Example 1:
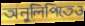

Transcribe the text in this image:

অনুলিপিতেও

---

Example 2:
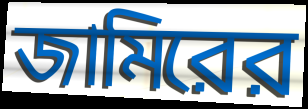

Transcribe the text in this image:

জামিরের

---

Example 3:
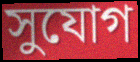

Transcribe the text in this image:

সুযোগ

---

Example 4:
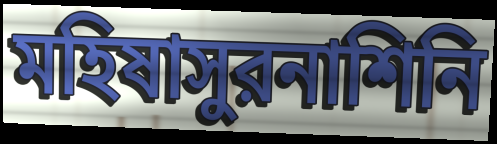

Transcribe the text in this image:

মহিষাসুরনাশিনি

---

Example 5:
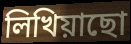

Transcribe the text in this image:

লিখিয়াছো